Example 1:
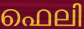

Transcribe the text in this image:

ഫെലി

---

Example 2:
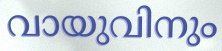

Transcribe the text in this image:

വായുവിനും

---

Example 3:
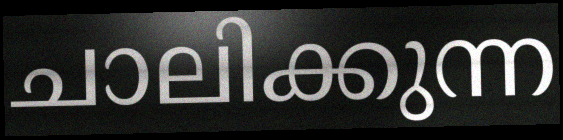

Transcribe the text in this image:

ചാലിക്കുന്ന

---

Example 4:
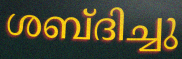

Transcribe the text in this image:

ശബ്ദിച്ചു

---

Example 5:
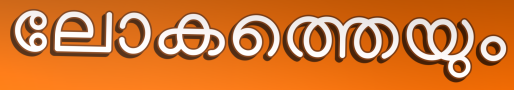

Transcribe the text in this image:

ലോകത്തെയും